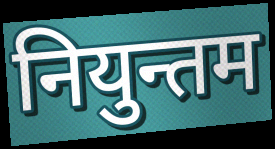
नियुन्तम